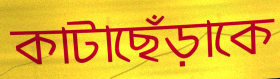
কাটাছেঁড়াকে